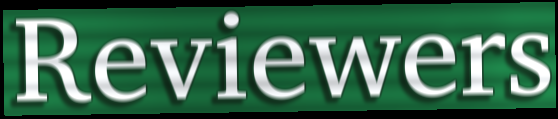
Reviewers